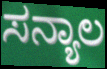
ಸನ್ಯಾಲ